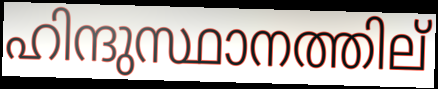
ഹിന്ദുസ്ഥാനത്തില്